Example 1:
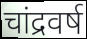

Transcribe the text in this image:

चांद्रवर्ष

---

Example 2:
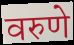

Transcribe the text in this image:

वरुणे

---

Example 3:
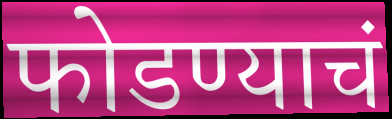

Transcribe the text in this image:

फोडण्याचं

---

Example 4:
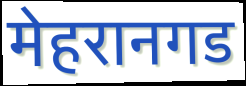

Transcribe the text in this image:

मेहरानगड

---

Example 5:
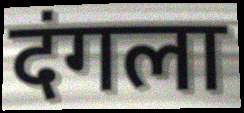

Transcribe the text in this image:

दंगला